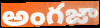
అంగజా